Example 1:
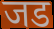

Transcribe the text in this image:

जड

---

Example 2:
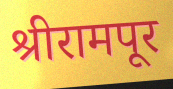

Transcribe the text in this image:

श्रीरामपूर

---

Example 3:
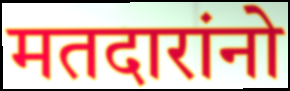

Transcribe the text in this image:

मतदारांनो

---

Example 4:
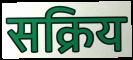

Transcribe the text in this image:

सक्रिय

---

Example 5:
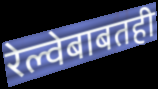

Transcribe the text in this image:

रेल्वेबाबतही